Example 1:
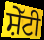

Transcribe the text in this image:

ਸ਼ੇੱਟੀ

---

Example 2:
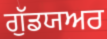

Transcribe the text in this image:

ਗੁੱਡਯਅਰ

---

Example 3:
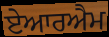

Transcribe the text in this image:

ਏਆਰਐਮ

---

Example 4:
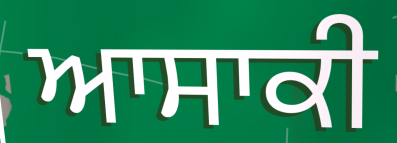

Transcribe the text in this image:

ਆਸਾਕੀ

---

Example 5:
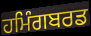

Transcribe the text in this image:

ਹਮਿੰਗਬਰਡ